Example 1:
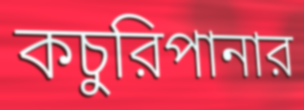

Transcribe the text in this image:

কচুরিপানার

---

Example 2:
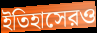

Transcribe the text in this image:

ইতিহাসেরও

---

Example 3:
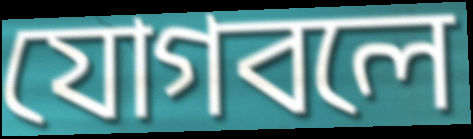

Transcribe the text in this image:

যোগবলে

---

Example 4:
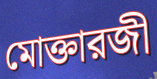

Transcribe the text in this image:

মোক্তারজী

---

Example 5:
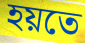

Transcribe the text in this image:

হয়তে